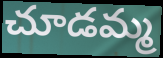
చూడమ్మ